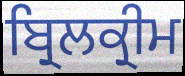
ਬ੍ਰਿਲਕ੍ਰੀਮ